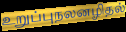
உறுப்புநலனழிதல்